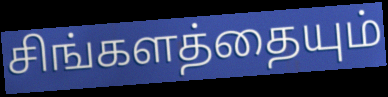
சிங்களத்தையும்